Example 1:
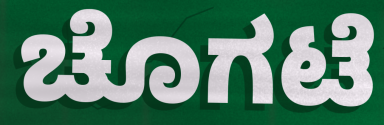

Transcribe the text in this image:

ಚೊಗಟೆ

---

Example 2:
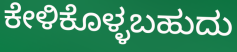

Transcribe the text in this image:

ಕೇಳಿಕೊಳ್ಳಬಹುದು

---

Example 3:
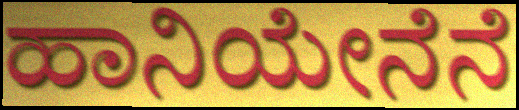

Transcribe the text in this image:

ಹಾನಿಯೇನೆನೆ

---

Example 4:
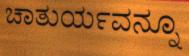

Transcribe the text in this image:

ಚಾತುರ್ಯವನ್ನೂ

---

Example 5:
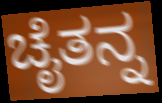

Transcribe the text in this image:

ಚೈತನ್ನ